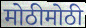
मोठीमोठी